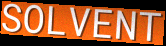
SOLVENT